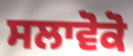
ਸਲਾਵੋਕੋ